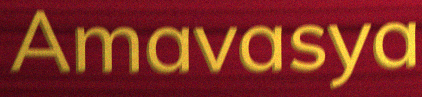
Amavasya